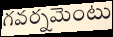
గవర్నమెంటు